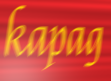
kapag